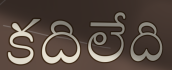
కదిలేది